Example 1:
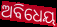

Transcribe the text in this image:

ଅବିଧେୟ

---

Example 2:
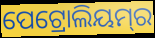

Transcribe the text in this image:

ପେଟ୍ରୋଲିୟମ୍‌ର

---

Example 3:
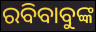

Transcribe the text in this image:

ରବିବାବୁଙ୍କ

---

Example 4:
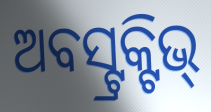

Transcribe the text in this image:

ଅବସ୍ଟ୍ରକ୍ଟିଭ୍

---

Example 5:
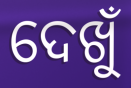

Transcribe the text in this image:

ଦେଖୁଁ